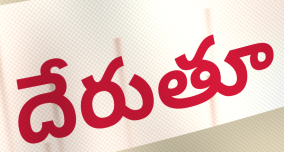
దేరుతూ